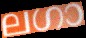
ലഗാ